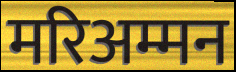
मरिअम्मन